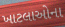
ખાટલાઓના